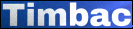
Timbac